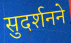
सुदर्शनने